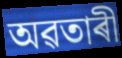
অৱতাৰী